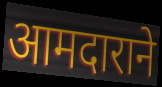
आमदाराने